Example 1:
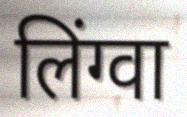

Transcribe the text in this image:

लिंग्वा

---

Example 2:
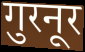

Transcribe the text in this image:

गुरनूर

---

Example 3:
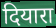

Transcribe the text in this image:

दियारा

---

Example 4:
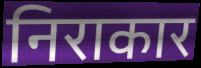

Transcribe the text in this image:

निराकार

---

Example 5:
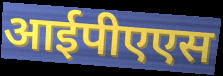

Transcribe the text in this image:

आईपीएएस